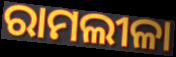
ରାମଲୀଳା